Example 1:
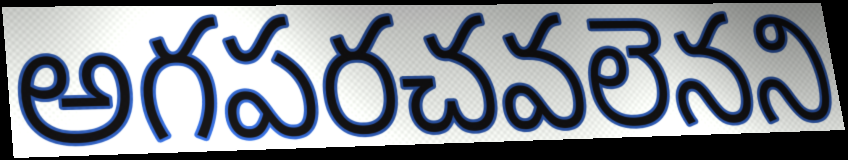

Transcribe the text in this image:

అగపరచవలెనని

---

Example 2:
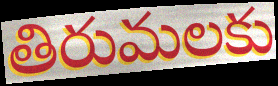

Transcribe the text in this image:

తిరుమలకు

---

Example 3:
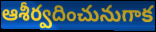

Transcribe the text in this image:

ఆశీర్వదించునుగాక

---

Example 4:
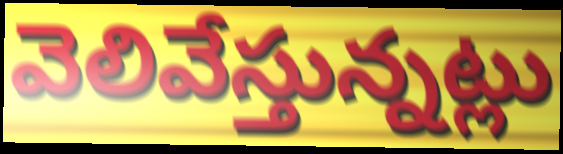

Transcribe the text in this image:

వెలివేస్తున్నట్లు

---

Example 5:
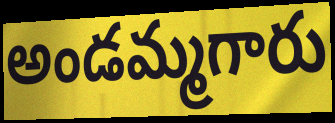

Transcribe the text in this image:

అండమ్మగారు